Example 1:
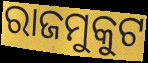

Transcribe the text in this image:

ରାଜମୁକୁଟ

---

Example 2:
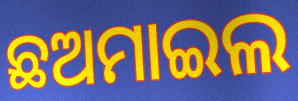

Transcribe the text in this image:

ଛଅମାଇଲ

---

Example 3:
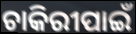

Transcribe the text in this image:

ଚାକିରୀପାଇଁ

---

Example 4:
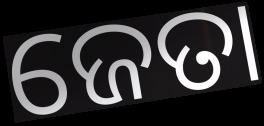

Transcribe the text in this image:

ଜେତା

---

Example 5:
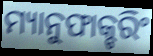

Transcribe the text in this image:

ମ୍ୟାନୁଫାକ୍ଚରିଂ